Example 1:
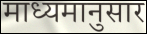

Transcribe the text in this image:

माध्यमानुसार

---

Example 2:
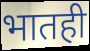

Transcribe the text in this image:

भातही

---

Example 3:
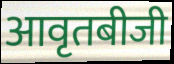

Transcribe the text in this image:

आवृतबीजी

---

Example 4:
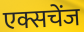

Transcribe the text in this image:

एक्सचेंज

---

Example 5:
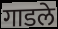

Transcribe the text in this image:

गाडले